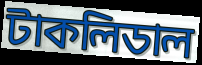
টাকলিডাল